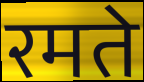
रमते